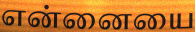
என்னையை